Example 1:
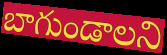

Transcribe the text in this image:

బాగుండాలని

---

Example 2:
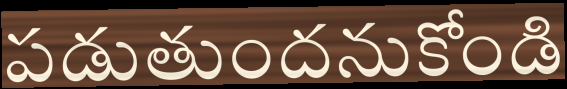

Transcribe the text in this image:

పడుతుందనుకోండి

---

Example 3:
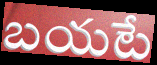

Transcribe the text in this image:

బయటే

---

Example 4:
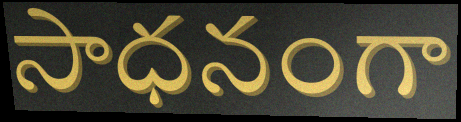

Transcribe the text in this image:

సాధనంగా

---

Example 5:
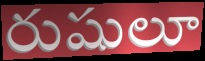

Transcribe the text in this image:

రుషులూ